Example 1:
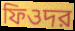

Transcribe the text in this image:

ফিওদর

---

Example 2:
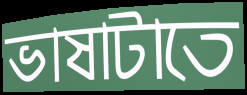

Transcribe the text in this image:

ভাষাটাতে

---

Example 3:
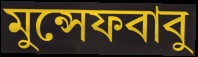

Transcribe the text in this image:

মুন্সেফবাবু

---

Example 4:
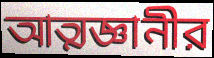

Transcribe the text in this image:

আত্মজ্ঞানীর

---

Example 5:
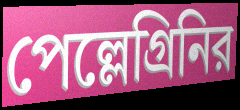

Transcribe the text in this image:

পেল্লেগ্রিনির